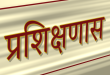
प्रशिक्षणास